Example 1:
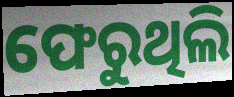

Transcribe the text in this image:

ଫେରୁଥିଲି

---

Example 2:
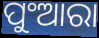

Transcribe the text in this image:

ପୁଂଆରା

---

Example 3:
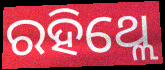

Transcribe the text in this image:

ରହିଥ୍ଲେ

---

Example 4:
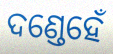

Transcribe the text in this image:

ଦଣ୍ଡେହେଁ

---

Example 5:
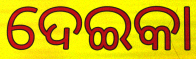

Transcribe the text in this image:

ଦେଇକା